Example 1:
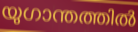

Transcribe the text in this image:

യുഗാന്തത്തിൽ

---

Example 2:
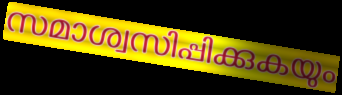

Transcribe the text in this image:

സമാശ്വസിപ്പിക്കുകയും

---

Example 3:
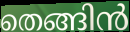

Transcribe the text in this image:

തെങ്ങിൻ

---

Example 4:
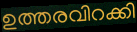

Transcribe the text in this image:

ഉത്തരവിറക്കി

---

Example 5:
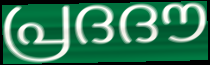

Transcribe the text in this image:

പ്രദദൗ